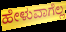
ಹೇಳುವಾಗೆಲ್ಲ